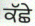
ਕੱਛੇ